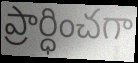
ప్రార్ధించగా